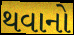
થવાનો